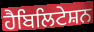
ਹੈਬਿਲਿਟੇਸ਼ਨ